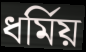
ধর্মিয়